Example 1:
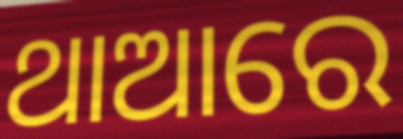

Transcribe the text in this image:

ଥାଆରେ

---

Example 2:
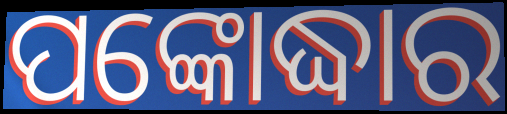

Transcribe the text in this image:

ପଙ୍କୋଦ୍ଧାର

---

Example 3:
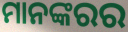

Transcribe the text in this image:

ମାନଙ୍କରର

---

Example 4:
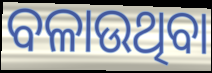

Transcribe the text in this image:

ବଳାଉଥିବା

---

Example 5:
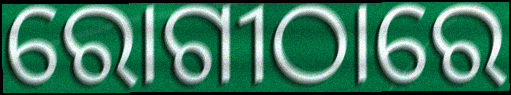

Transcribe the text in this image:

ରୋଗୀଠାରେ